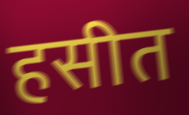
हसीत